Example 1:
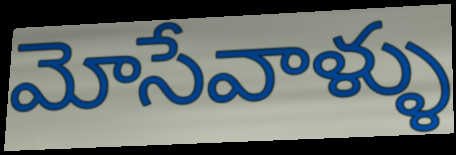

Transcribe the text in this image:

మోసేవాళ్ళు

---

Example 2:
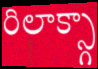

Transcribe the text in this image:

రిలాక్స్గా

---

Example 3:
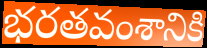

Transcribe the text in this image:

భరతవంశానికి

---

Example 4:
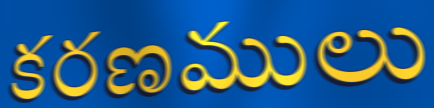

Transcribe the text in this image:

కరణములు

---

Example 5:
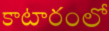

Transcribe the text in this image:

కాటారంలో